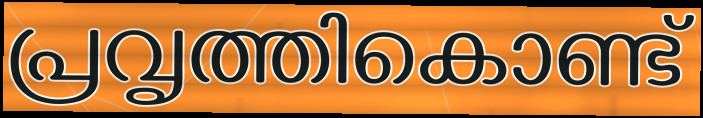
പ്രവൃത്തികൊണ്ട്